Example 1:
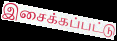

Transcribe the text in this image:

இசைக்கப்பட்டு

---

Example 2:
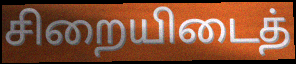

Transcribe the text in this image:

சிறையிடைத்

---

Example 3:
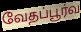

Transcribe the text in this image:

வேதப்பூர்வ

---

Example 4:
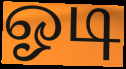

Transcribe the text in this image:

ஓடி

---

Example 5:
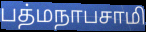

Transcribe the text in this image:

பத்மநாபசாமி